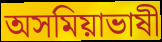
অসমিয়াভাষী